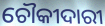
ଚୌକୀଦାରୀ